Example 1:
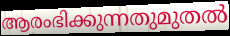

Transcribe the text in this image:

ആരംഭിക്കുന്നതുമുതൽ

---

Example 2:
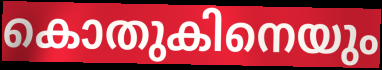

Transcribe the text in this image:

കൊതുകിനെയും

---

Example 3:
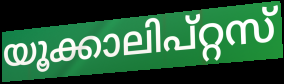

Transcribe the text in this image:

യൂക്കാലിപ്റ്റസ്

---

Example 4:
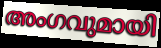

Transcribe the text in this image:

അംഗവുമായി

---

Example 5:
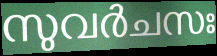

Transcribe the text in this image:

സുവർചസഃ